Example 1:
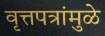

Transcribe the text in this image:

वृत्तपत्रांमुळे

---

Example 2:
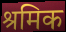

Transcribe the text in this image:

श्रमिक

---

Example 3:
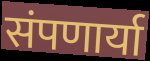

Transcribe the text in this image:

संपणार्या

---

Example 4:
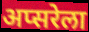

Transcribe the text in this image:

अप्सरेला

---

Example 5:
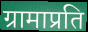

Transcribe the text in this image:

ग्रामाप्रति